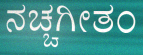
ನಚ್ಚಗೀತಂ